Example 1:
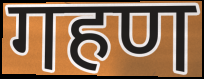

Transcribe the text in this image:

गहण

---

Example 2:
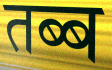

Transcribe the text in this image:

तब्ब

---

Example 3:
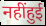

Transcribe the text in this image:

नहींहुई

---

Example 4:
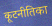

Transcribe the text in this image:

कूटनीतिका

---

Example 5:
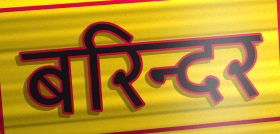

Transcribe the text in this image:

बरिन्दर